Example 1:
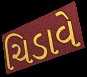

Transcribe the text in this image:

ચિડાવે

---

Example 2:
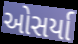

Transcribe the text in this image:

ઓસર્યા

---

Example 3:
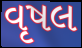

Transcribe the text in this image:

વૃષલ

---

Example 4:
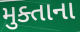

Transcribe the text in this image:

મુક્તાના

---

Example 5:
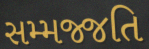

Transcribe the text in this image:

સમ્મજ્જતિ